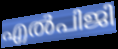
എൽപിജി